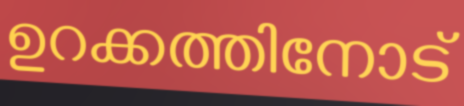
ഉറക്കത്തിനോട്